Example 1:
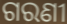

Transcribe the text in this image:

ଗରଣୀ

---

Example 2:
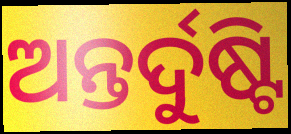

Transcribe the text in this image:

ଅନ୍ତର୍ଦୁଷ୍ଟି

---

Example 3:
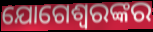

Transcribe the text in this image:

ଯୋଗେଶ୍ଵରଙ୍କର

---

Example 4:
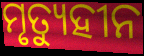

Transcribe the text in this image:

ମୃତ୍ୟୁହୀନ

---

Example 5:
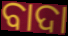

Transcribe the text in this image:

ବାଦା